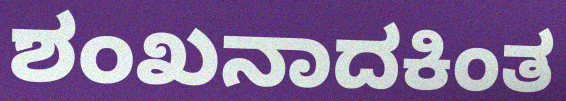
ಶಂಖನಾದಕಿಂತ